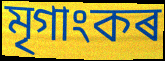
মৃগাংকৰ